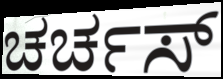
ಚರ್ಚಸ್